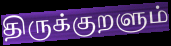
திருக்குறளும்